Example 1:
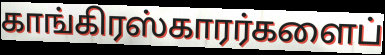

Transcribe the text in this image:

காங்கிரஸ்காரர்களைப்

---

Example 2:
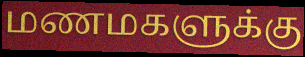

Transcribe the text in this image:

மணமகளுக்கு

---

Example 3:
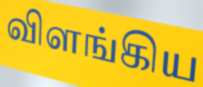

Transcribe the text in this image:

விளங்கிய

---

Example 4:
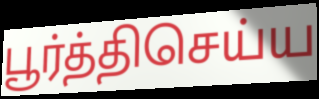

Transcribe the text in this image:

பூர்த்திசெய்ய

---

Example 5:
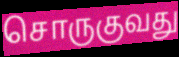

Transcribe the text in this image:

சொருகுவது